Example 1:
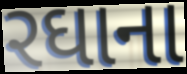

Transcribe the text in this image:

રઘાના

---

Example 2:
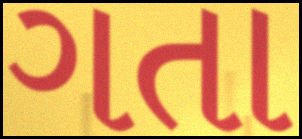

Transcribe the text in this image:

ગતા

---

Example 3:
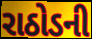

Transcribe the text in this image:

રાઠોડની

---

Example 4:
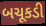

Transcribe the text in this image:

બચૂકડી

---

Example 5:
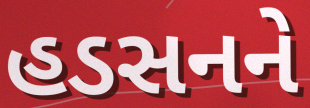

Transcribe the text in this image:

હડસનને